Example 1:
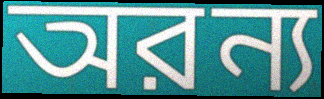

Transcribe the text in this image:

অরন্য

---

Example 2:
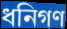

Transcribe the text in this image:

ধনিগণ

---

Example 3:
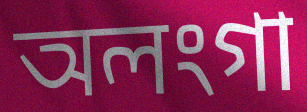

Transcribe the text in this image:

অলংগা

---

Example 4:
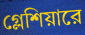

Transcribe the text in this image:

গ্লেশিয়ারে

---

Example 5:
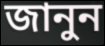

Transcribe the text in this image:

জানুন